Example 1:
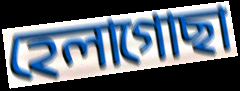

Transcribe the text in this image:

হেলাগোছা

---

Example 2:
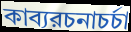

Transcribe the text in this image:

কাব্যরচনাচর্চা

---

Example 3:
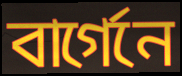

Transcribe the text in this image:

বার্গেনে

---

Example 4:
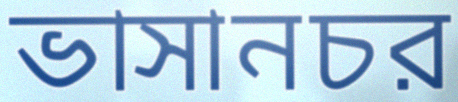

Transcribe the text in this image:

ভাসানচর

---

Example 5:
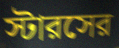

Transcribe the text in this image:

স্টারসের